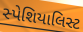
સ્પેશિયાલિસ્ટ